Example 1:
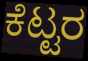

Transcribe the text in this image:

ಕೆಟ್ಟರ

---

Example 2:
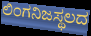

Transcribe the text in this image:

ಲಿಂಗನಿಜಸ್ಥಲದ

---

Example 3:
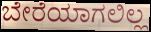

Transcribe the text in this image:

ಬೇರೆಯಾಗಲಿಲ್ಲ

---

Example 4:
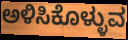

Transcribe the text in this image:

ಅಳಿಸಿಕೊಳ್ಳುವ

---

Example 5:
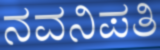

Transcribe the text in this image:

ನವನಿಪತಿ